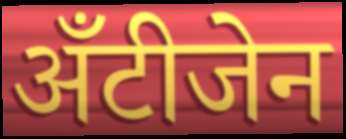
अँटीजेन